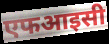
एफआइसी